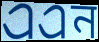
এএন